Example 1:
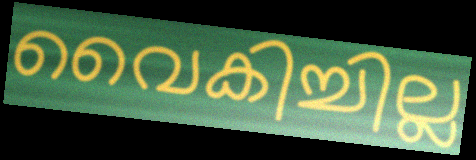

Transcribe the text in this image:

വൈകിച്ചില്ല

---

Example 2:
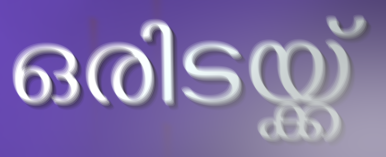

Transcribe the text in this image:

ഒരിടയ്ക്ക്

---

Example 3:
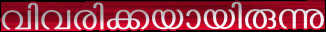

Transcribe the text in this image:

വിവരിക്കയായിരുന്നു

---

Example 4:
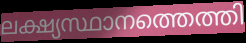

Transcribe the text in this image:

ലക്ഷ്യസ്ഥാനത്തെത്തി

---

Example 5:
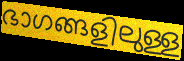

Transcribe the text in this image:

ഭാഗങ്ങളിലുള്ള